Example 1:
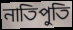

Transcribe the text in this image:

নাতিপুতি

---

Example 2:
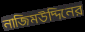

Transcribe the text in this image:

নাজিমউদ্দিনের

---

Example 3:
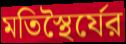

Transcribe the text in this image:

মতিস্থৈর্যের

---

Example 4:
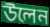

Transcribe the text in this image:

উলেন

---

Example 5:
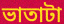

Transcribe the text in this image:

ভাতাটা